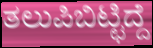
ತಲುಪಿಬಿಟ್ಟಿದ್ದೆ